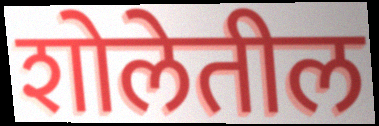
शोलेतील